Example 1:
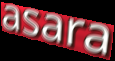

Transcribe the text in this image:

asara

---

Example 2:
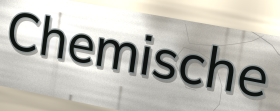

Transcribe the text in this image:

Chemische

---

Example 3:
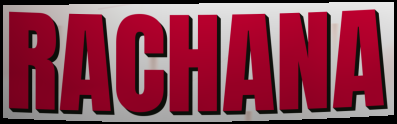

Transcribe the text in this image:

RACHANA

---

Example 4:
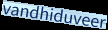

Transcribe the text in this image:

vandhiduveer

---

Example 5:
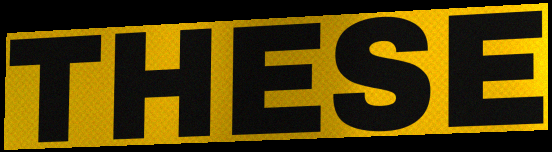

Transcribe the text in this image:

THESE